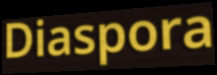
Diaspora